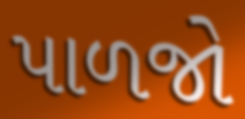
પાળજો